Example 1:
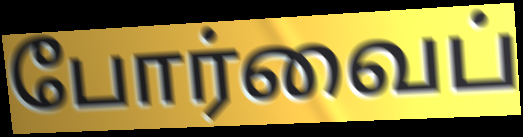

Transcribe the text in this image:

போர்வைப்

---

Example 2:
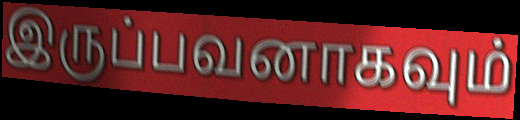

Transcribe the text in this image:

இருப்பவனாகவும்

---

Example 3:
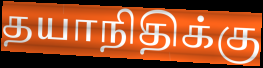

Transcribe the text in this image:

தயாநிதிக்கு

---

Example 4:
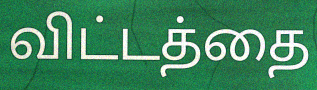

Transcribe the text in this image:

விட்டத்தை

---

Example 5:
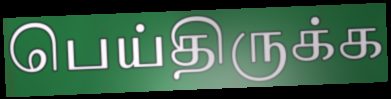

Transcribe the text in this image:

பெய்திருக்க